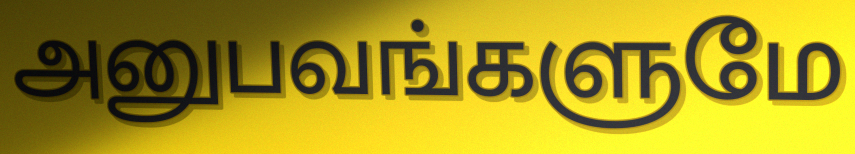
அனுபவங்களுமே